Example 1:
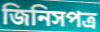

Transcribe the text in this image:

জিনিসপত্র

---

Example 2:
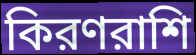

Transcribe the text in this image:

কিরণরাশি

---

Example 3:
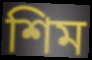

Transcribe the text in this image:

শিম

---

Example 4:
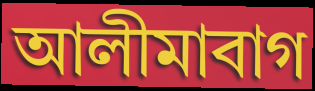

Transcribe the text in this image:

আলীমাবাগ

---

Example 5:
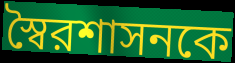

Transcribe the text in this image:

স্বৈরশাসনকে